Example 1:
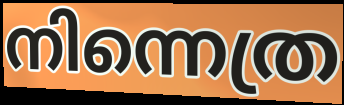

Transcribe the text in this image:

നിന്നെത്ര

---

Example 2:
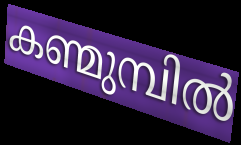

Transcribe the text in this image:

കണ്മുമ്പിൽ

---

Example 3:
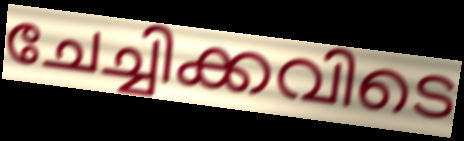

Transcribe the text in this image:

ചേച്ചിക്കവിടെ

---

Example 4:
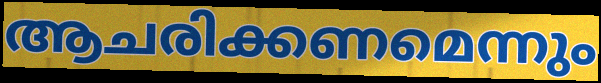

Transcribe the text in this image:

ആചരിക്കണമെന്നും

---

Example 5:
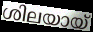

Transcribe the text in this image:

ശിലയായ്